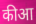
कीआ